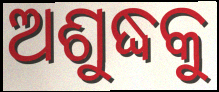
ଅଶୁଦ୍ଧକୁ